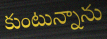
కుంటున్నాను